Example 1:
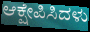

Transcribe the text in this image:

ಆಕ್ಷೇಪಿಸಿದಳು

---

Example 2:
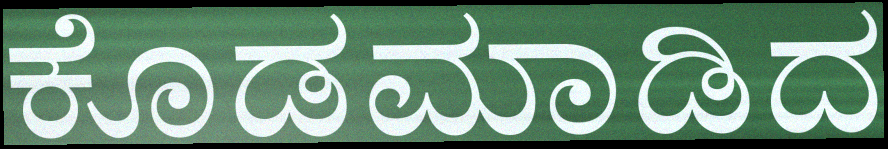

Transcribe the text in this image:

ಕೊಡಮಾಡಿದ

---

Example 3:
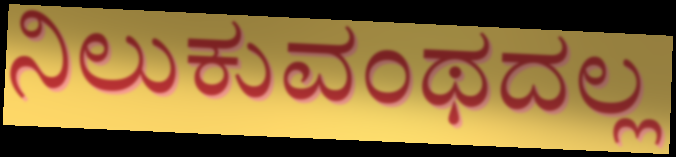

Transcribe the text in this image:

ನಿಲುಕುವಂಥದಲ್ಲ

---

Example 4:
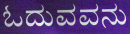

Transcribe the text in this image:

ಓದುವವನು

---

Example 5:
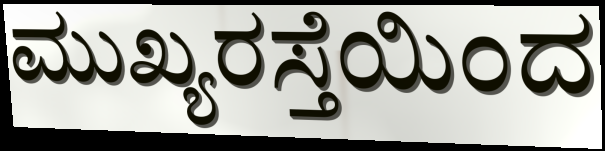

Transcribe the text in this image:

ಮುಖ್ಯರಸ್ತೆಯಿಂದ